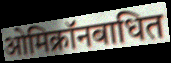
ओमिक्रॉनबाधित